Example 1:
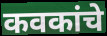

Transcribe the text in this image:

कवकांचे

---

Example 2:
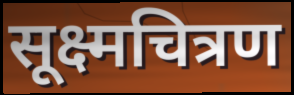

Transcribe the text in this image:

सूक्ष्मचित्रण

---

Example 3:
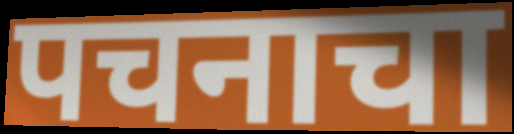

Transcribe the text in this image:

पचनाचा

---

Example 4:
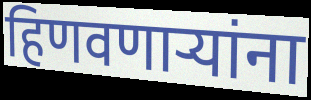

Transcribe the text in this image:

हिणवणाऱ्यांना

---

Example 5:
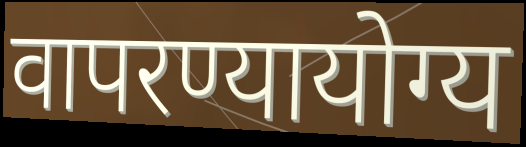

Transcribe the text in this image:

वापरण्यायोग्य